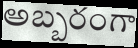
అబ్బరంగా